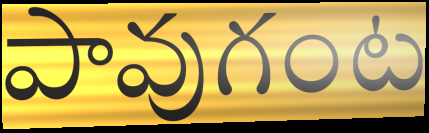
పావుగంట